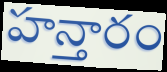
హన్తారం